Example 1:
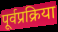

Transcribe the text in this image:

पूर्वप्रक्रिया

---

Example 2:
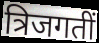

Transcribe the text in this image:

त्रिजगतीं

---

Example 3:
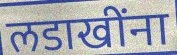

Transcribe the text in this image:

लडाखींना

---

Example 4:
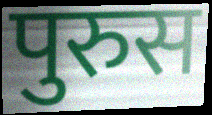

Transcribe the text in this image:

पुरुस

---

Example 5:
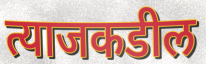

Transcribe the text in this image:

त्याजकडील